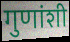
गुणांशी